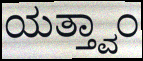
ಯತ್ತ್ವಾಂ